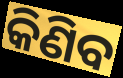
କିଣିବ